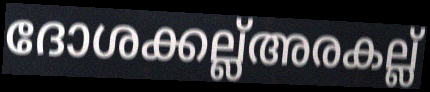
ദോശക്കല്ല്അരകല്ല്